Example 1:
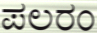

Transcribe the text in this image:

ಪಲರಂ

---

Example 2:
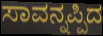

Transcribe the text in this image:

ಸಾವನ್ನಪ್ಪಿದ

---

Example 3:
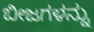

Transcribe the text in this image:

ಬೀಜಗಳನ್ನು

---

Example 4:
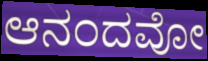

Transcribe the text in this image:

ಆನಂದವೋ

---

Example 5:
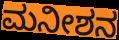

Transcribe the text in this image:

ಮನೀಶನ